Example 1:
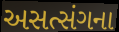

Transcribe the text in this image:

અસત્સંગના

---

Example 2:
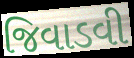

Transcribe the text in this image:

જિવાડવી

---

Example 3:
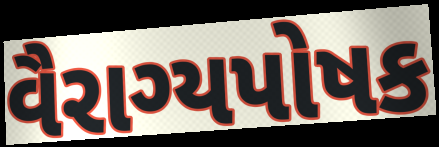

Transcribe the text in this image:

વૈરાગ્યપોષક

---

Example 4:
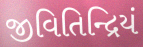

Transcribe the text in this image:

જીવિતિન્દ્રિયં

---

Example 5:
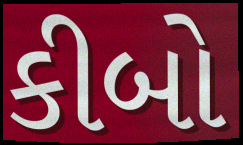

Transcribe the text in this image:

કીબો